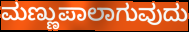
ಮಣ್ಣುಪಾಲಾಗುವುದು